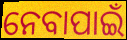
ନେବାପାଇଁ